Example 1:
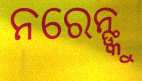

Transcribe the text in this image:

ନରେନ୍ଙ୍କୁ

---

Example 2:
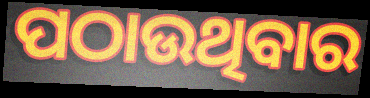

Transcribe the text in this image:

ପଠାଉଥିବାର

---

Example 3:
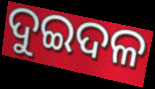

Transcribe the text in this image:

ଦୁଇଦଳ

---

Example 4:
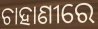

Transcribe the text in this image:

ଚାହାଣୀରେ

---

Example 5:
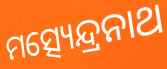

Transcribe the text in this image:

ମତ୍ସ୍ୟେନ୍ଦ୍ରନାଥ